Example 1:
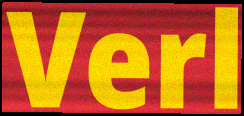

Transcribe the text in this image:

Verl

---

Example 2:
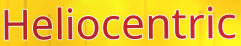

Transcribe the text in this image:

Heliocentric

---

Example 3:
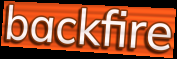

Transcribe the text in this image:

backfire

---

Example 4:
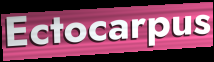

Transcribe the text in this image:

Ectocarpus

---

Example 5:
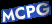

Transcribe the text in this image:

MCPG